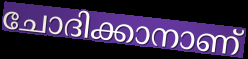
ചോദിക്കാനാണ്